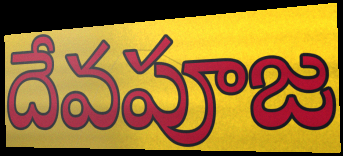
దేవపూజ